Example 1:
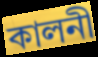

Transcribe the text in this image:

কালনী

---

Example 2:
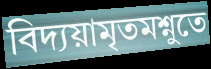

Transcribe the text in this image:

বিদ্যয়ামৃতমশ্নুতে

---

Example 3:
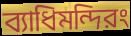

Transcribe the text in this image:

ব্যাধিমন্দিরং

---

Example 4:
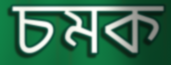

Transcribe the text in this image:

চমক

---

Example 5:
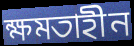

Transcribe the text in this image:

ক্ষমতাহীন